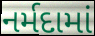
નર્મદામાં